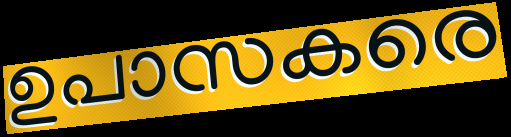
ഉപാസകരെ